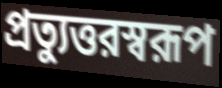
প্রত্যুত্তরস্বরূপ